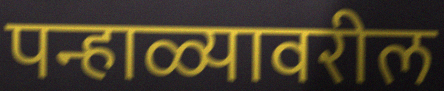
पन्हाळ्यावरील